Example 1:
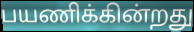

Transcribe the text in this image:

பயணிக்கின்றது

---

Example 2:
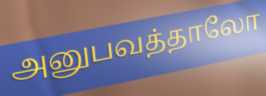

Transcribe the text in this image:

அனுபவத்தாலோ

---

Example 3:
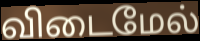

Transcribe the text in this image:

விடைமேல்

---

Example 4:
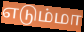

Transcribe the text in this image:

எடும்மா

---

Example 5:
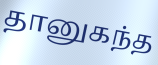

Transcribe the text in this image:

தானுகந்த